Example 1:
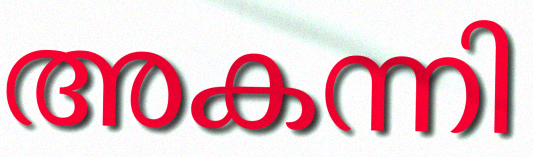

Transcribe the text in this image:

അകന്നി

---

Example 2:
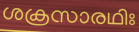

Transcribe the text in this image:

ശക്രസാരഥിഃ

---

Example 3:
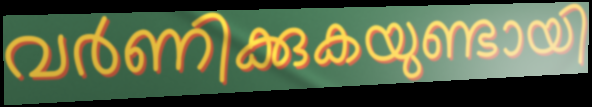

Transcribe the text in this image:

വർണിക്കുകയുണ്ടായി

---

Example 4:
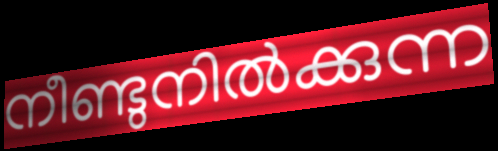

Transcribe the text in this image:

നീണ്ടുനിൽക്കുന്ന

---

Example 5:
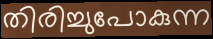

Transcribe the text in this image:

തിരിച്ചുപോകുന്ന